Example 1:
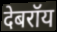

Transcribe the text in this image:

देबरॉय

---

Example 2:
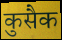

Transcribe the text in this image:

कुसैक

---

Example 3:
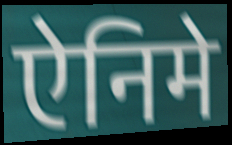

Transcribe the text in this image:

ऐनिमे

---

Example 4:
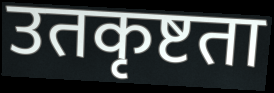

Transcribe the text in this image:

उतकृष्टता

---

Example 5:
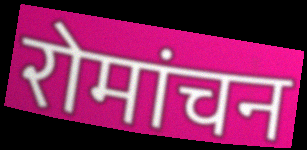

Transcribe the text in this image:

रोमांचन